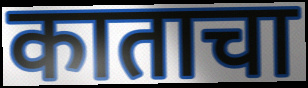
काताचा